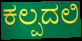
ಕಲ್ಪದಲಿ